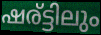
ഷര്ട്ടിലും